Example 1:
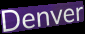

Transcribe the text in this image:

Denver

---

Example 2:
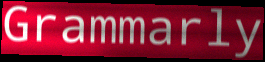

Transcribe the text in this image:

Grammarly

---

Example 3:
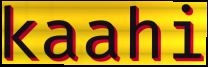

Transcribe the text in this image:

kaahi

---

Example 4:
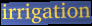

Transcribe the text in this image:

irrigation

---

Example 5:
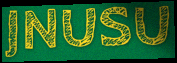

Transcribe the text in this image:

JNUSU